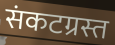
संकटग्रस्‍त